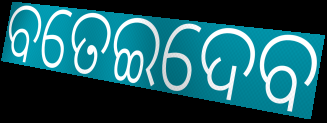
ବତେଇଦେବ